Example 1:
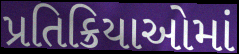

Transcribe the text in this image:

પ્રતિક્રિયાઓમાં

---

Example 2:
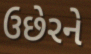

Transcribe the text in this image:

ઉછેરને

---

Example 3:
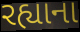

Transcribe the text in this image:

રહ્યાના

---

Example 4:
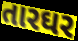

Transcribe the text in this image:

તારઘર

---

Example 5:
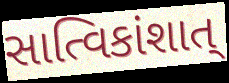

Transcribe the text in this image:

સાત્વિકાંશાત્